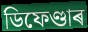
ডিফেণ্ডাৰ